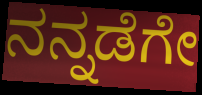
ನನ್ನಡೆಗೇ